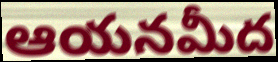
ఆయనమీద